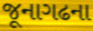
જૂનાગઢના